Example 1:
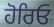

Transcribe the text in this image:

ਹੋਰਿਓ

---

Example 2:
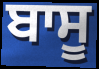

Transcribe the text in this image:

ਬਾਸੂ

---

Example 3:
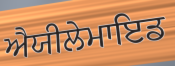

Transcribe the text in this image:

ਐਯੀਲੇਮਾਇਡ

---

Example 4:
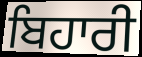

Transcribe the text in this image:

ਬਿਹਾਰੀ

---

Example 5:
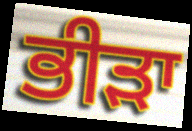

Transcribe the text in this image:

ਭੀੜਾ